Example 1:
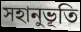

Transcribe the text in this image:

সহানুভূতি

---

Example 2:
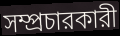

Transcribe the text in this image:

সম্প্রচারকারী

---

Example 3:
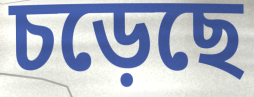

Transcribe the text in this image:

চড়েছে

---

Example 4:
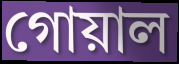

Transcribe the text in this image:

গোয়াল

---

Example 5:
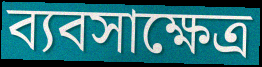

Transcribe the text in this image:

ব্যবসাক্ষেত্র